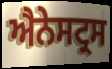
ਐਨੇਸਟ੍ਰਸ